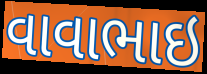
વાવાભાઇ